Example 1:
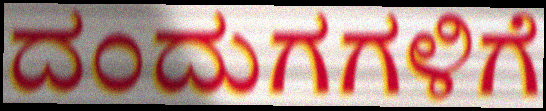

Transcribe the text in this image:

ದಂದುಗಗಳಿಗೆ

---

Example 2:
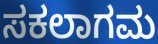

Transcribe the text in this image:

ಸಕಲಾಗಮ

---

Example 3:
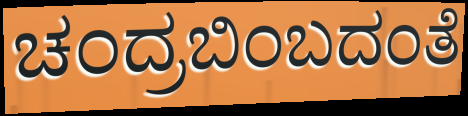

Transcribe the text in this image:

ಚಂದ್ರಬಿಂಬದಂತೆ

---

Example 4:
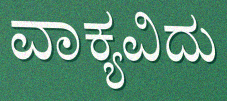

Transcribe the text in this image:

ವಾಕ್ಯವಿದು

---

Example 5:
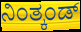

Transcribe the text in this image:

ನಿಂತ್ಕಂಡ್